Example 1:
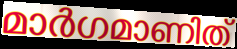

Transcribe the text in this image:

മാർഗമാണിത്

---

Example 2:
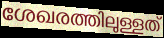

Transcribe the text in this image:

ശേഖരത്തിലുള്ളത്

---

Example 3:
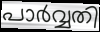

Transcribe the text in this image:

പാർവ്വതി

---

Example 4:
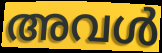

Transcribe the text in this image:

അവൾ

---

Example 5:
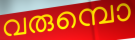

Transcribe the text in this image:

വരുമ്പൊ